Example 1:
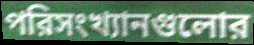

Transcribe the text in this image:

পরিসংখ্যানগুলোর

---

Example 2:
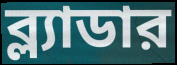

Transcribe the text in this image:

ব্ল্যাডার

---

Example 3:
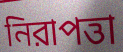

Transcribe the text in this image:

নিরাপত্তা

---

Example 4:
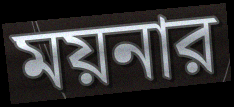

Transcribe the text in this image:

ময়নার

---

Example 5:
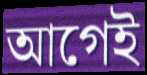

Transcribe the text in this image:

আগেই